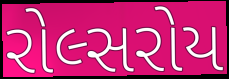
રોલ્સરોય